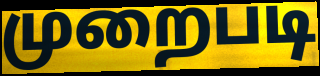
முறைபடி